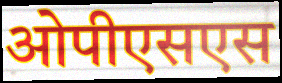
ओपीएसएस